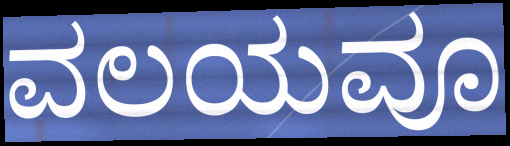
ವಲಯವೂ